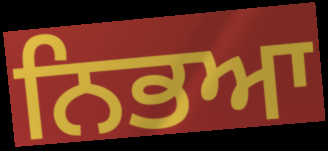
ਨਿਭਆ